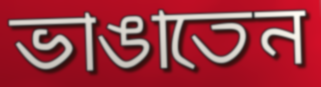
ভাঙাতেন